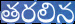
తరలిన